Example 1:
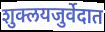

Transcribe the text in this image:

शुक्लयजुर्वेदात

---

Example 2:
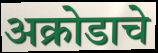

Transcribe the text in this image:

अक्रोडाचे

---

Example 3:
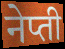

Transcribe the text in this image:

नेप्ती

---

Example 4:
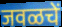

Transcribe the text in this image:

जवळचें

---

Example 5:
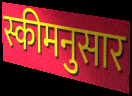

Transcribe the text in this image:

स्कीमनुसार